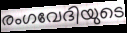
രംഗവേദിയുടെ